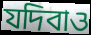
যদিবাও